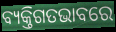
ବ୍ୟକ୍ତିଗତଭାବରେ